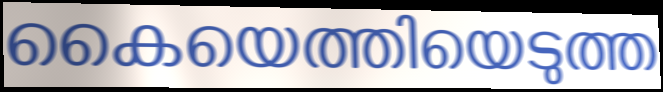
കൈയെത്തിയെടുത്ത